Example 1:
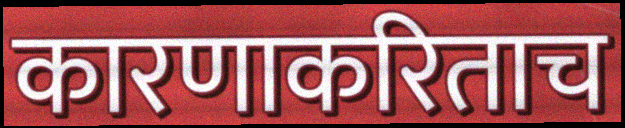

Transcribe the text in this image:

कारणाकरिताच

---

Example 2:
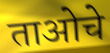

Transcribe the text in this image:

ताओचे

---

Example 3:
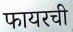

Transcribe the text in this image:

फायरची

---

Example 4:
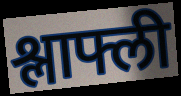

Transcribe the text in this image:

श्लाफ्ली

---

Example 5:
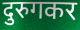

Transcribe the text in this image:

दुरुगकर